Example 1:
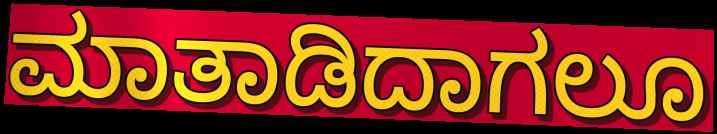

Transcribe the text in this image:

ಮಾತಾಡಿದಾಗಲೂ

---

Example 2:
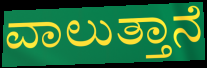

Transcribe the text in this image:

ವಾಲುತ್ತಾನೆ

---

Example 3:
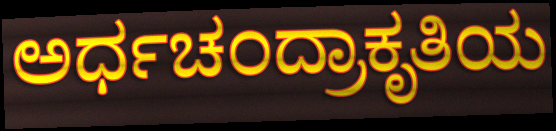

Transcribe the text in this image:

ಅರ್ಧಚಂದ್ರಾಕೃತಿಯ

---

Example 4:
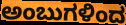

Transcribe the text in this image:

ಅಂಬುಗಳಿಂದ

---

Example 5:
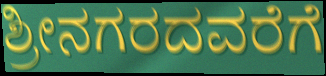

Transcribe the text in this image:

ಶ್ರೀನಗರದವರೆಗೆ